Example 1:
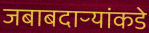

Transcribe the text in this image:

जबाबदाऱ्यांकडे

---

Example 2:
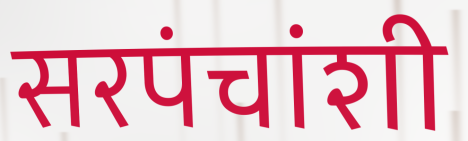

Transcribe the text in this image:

सरपंचांशी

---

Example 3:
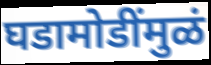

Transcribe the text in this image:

घडामोडींमुळं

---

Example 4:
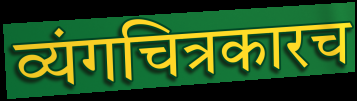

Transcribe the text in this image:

व्यंगचित्रकारच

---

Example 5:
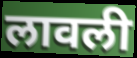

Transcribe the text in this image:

लावली